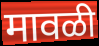
मावळी